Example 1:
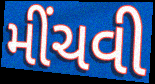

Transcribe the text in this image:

મીંચવી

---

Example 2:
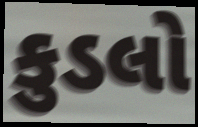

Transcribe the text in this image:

કુડલો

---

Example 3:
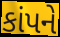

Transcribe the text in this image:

કાંપને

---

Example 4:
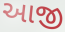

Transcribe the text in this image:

આજી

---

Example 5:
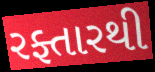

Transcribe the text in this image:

રફ્તારથી